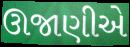
ઊજાણીએ